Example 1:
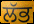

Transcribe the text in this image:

ਲੱਭ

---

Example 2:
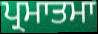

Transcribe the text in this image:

ਪ੍ਰਮਾਤਮਾ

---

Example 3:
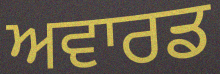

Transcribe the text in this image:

ਅਵਾਰਡ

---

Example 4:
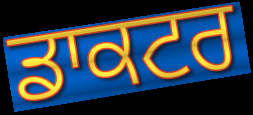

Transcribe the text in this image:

ਡਾਕਟਰ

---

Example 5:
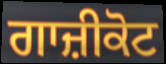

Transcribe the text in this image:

ਗਾਜ਼ੀਕੋਟ